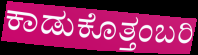
ಕಾಡುಕೊತ್ತಂಬರಿ